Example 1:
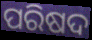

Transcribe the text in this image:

ପରିଷଦ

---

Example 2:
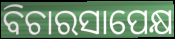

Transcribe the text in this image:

ବିଚାରସାପେକ୍ଷ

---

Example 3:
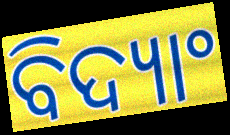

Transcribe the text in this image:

ବିଦ୍ଯାଂ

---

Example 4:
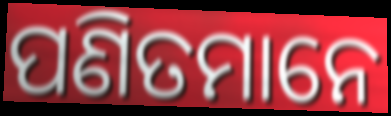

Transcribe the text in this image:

ପଣିତମାନେ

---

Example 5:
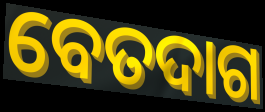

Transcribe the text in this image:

ବେତଦାଗ